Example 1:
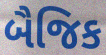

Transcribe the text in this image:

બૈજિક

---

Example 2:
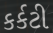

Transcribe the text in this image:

કર્કટી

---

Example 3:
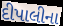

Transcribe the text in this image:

દીપાલીના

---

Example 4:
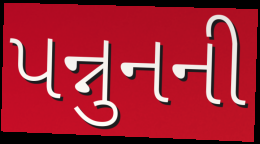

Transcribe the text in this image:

પન્નુનની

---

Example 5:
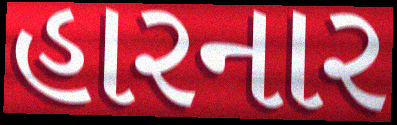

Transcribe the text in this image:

હારનાર